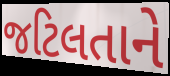
જટિલતાને